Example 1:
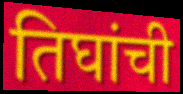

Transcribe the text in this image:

तिघांची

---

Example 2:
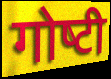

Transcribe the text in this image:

गोष्‍टी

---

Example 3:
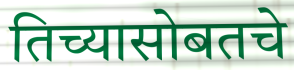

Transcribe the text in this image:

तिच्यासोबतचे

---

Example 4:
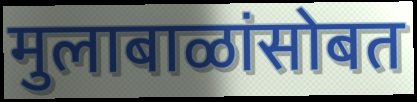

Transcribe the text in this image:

मुलाबाळांसोबत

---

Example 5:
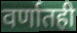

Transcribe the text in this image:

वर्णातही